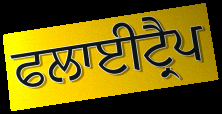
ਫਲਾਈਟ੍ਰੈਪ